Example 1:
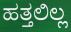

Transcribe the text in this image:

ಹತ್ತಲಿಲ್ಲ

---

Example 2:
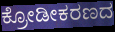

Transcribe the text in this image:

ಕ್ರೋಡೀಕರಣದ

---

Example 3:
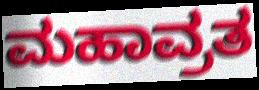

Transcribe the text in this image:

ಮಹಾವ್ರತ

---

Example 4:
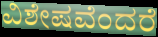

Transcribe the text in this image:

ವಿಶೇಷವೆಂದರೆ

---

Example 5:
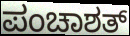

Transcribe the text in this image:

ಪಂಚಾಶತ್